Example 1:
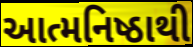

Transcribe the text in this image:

આત્મનિષ્ઠાથી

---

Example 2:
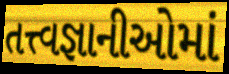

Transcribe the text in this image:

તત્ત્વજ્ઞાનીઓમાં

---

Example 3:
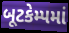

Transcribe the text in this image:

બૂટકેમ્પમાં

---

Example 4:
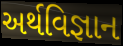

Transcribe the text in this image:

અર્થવિજ્ઞાન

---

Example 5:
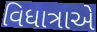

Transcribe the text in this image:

વિધાત્રાએ